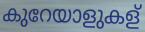
കുറേയാളുകള്